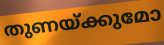
തുണയ്ക്കുമോ